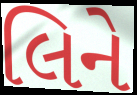
લિને